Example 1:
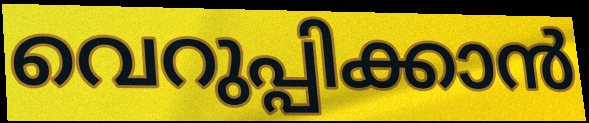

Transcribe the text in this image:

വെറുപ്പിക്കാൻ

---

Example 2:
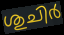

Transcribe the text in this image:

ശുചിർ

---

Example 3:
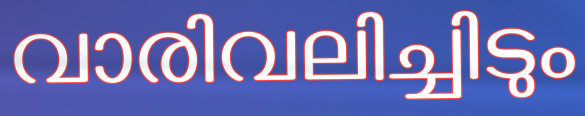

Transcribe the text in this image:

വാരിവലിച്ചിടും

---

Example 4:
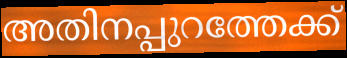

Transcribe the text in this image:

അതിനപ്പുറത്തേക്ക്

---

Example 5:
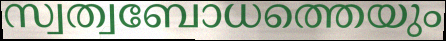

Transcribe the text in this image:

സ്വത്വബോധത്തെയും